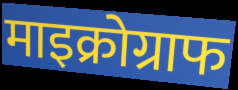
माइक्रोग्राफ